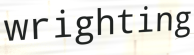
wrighting